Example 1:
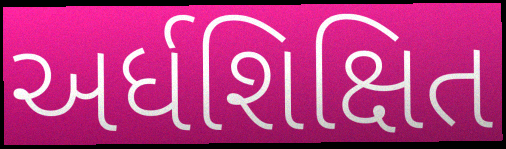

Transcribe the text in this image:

અર્ધશિક્ષિત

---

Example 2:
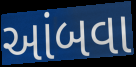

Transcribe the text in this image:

આંબવા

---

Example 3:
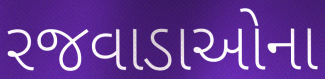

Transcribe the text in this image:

રજવાડાઓના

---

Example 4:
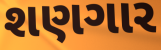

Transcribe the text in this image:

શણગાર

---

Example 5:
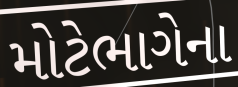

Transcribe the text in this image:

મોટેભાગેના